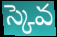
స్కెవ